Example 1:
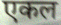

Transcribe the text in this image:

एकल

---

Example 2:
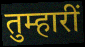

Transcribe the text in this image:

तुम्हारीं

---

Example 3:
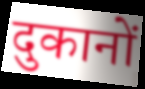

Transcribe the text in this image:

दुकानों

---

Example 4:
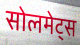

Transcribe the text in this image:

सोलमेट्स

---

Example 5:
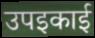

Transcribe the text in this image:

उपइकाई